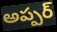
అప్పర్